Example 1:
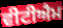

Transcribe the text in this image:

ਵੀਟੀਐਮ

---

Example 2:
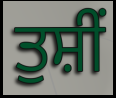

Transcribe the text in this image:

ਤੁਸ਼ੀਂ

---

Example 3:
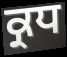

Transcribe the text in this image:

ਕ੍ਰਧ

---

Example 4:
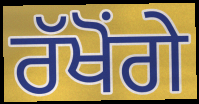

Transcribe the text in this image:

ਰੱਖੋਂਗੇ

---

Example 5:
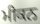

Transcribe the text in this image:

ਮੀਕਨ